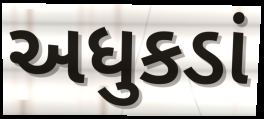
અધુકડાં